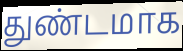
துண்டமாக